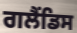
ਗਲੈਂਡਿਸ